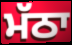
ਮੱਠਾ